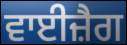
ਵਾਈਜ਼ੈਗ